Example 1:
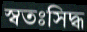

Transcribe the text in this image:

স্বতঃসিদ্ধ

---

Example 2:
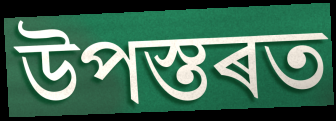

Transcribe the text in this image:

উপস্তৰত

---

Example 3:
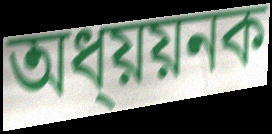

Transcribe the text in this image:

অধ্য়য়নক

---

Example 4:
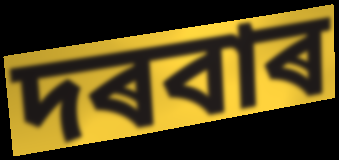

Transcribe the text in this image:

দৰবাৰ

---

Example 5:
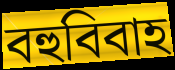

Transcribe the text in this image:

বহুবিবাহ